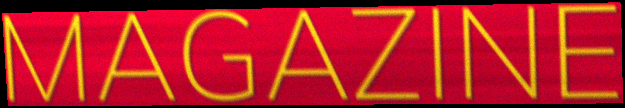
MAGAZINE